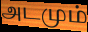
அடமும்